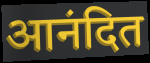
आनंदित